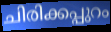
ചിരിക്കപ്പുറം